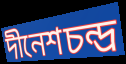
দীনেশচন্দ্র